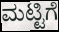
ಮಟ್ಟಿಗೆ